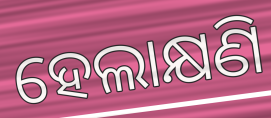
ହେଲାକ୍ଷଣି